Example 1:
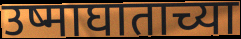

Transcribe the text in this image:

उष्माघाताच्या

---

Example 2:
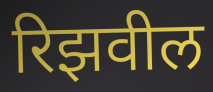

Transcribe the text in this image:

रिझवील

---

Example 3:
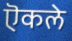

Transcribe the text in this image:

ऎकले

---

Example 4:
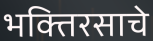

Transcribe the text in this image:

भक्तिरसाचे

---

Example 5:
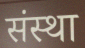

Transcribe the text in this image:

संस्था